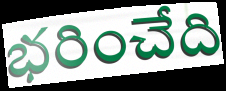
భరించేది